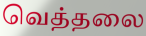
வெத்தலை